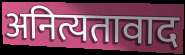
अनित्यतावाद